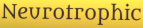
Neurotrophic